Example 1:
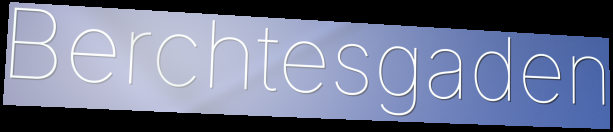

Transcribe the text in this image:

Berchtesgaden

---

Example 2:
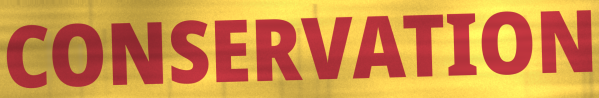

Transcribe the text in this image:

CONSERVATION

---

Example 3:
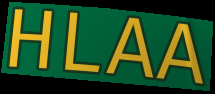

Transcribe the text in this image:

HLAA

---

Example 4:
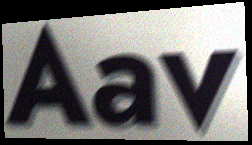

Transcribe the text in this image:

Aav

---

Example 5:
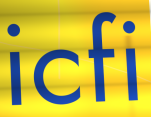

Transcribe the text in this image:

icfi